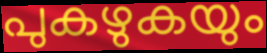
പുകഴുകയും